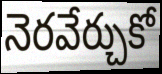
నెరవేర్చుకో